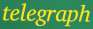
telegraph